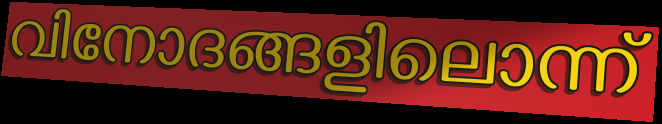
വിനോദങ്ങളിലൊന്ന്